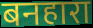
बनहारा